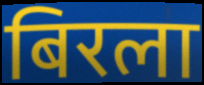
बिरला